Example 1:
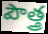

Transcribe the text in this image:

పౌత్త్ర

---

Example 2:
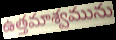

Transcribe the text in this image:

ఉత్తమాశ్వమును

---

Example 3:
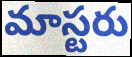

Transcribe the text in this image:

మాస్టరు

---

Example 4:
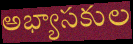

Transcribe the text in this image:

అభ్యాసకుల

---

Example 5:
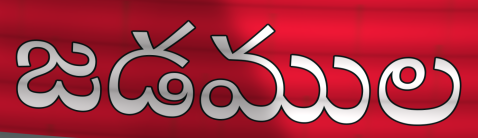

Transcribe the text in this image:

జడముల